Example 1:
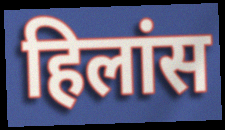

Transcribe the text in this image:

हिलांस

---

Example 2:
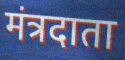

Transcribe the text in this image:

मंत्रदाता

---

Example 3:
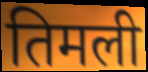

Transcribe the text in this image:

तिमली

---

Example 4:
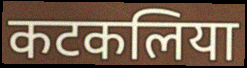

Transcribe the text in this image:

कटकलिया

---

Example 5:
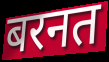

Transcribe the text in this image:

बरनत